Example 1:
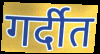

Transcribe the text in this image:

गर्दीत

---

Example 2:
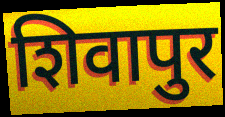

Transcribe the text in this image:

शिवापुर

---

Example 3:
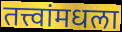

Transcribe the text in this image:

तत्त्वांमधला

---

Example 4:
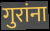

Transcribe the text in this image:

गुरांना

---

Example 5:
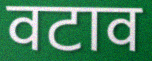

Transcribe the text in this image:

वटाव